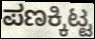
ಪಣಕ್ಕಿಟ್ಟ